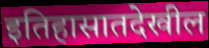
इतिहासातदेखील